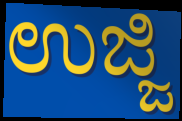
ಉಜ್ಜಿ